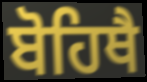
ਬੋਹਿਥੈ